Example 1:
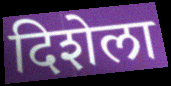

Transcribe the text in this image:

दिशेला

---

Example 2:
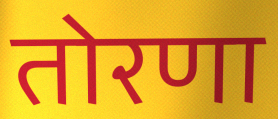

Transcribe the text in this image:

तोरणा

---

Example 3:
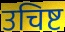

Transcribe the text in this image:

उचिष्ट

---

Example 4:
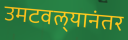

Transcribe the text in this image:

उमटवल्यानंतर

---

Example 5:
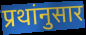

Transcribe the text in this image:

प्रथांनुसार